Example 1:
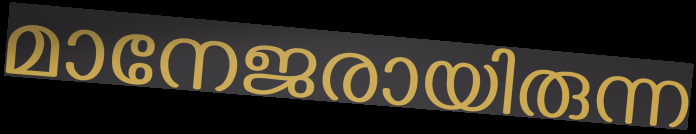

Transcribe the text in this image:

മാനേജരായിരുന്ന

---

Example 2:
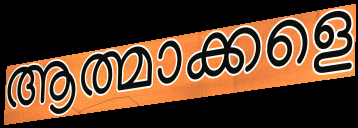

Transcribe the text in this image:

ആത്മാക്കളെ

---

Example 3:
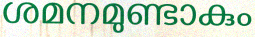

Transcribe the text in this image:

ശമനമുണ്ടാകും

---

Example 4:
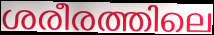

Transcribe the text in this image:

ശരീരത്തിലെ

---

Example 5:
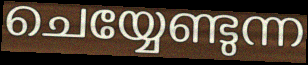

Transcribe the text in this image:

ചെയ്യേണ്ടുന്ന